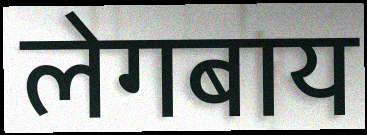
लेगबाय